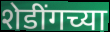
शेडींगच्या